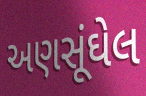
અણસૂંઘેલ